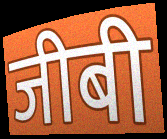
जीबी